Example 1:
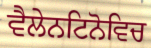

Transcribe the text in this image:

ਵੈਲੇਨਟਿਨੋਵਿਚ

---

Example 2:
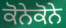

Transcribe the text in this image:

ਕੋਨੇਕੋਨੇ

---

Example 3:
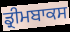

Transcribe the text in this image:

ਡ੍ਰੀਮਬਾਕਸ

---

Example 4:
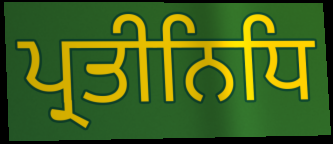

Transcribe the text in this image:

ਪ੍ਰਤੀਨਿਧਿ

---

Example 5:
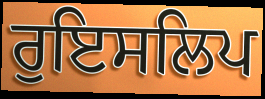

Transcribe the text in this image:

ਰੁਇਸਲਿਪ